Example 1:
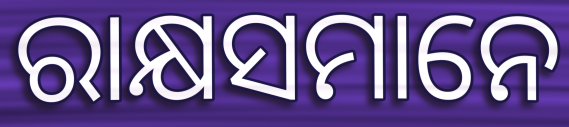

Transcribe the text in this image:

ରାକ୍ଷସମାନେ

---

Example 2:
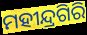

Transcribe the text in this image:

ମହୀନ୍ଦ୍ରଗିରି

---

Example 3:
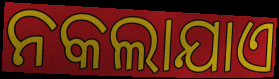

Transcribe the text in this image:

ନକଲାଯାଏ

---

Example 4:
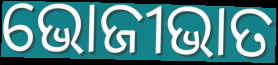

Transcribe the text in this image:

ଭୋଜୀଭାତ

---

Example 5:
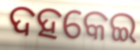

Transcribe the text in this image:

ଦହକେଇ